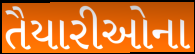
તૈયારીઓના